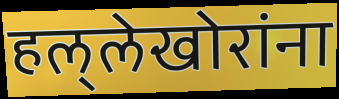
हल्लेखोरांना